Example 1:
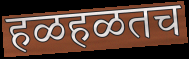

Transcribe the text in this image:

हळहळतच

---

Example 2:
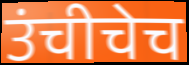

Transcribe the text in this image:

उंचीचेच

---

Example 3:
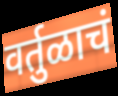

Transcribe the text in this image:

वर्तुळाचं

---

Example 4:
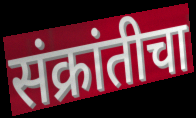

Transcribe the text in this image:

संक्रांतीचा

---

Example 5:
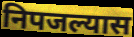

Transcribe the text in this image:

निपजल्यास